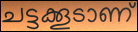
ചട്ടക്കൂടാണ്